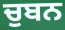
ਚੁਬਨ